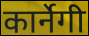
कार्नेगी